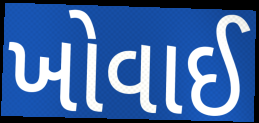
ખોવાઈ